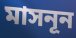
মাসনূন